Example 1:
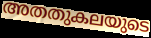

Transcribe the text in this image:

അതതുകലയുടെ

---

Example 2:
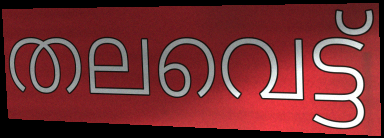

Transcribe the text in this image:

തലവെട്ട്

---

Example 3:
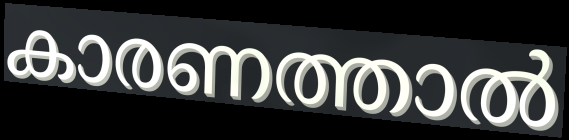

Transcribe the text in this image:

കാരണത്താൽ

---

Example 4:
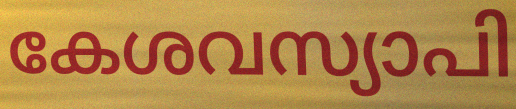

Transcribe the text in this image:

കേശവസ്യാപി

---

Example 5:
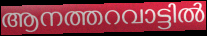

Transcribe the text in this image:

ആനത്തറവാട്ടിൽ